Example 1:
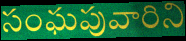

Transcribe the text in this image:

సంఘపువారిని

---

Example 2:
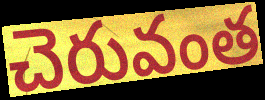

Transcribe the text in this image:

చెరువంత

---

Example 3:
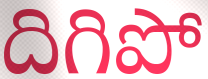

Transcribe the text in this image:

దిగిపో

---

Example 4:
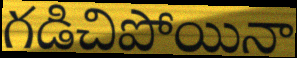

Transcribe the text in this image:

గడిచిపోయినా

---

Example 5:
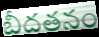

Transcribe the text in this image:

బీదతనం